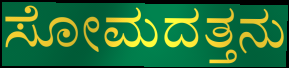
ಸೋಮದತ್ತನು